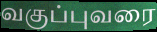
வகுப்புவரை